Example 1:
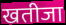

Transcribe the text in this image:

खतीजा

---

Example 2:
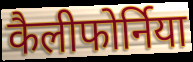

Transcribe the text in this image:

कैलीफोर्निया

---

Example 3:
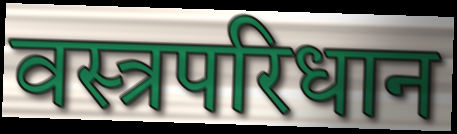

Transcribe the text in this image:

वस्त्रपरिधान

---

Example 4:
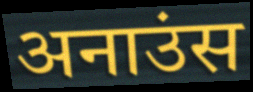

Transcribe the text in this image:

अनाउंस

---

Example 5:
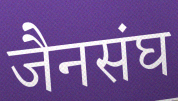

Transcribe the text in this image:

जैनसंघ